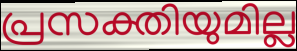
പ്രസക്തിയുമില്ല